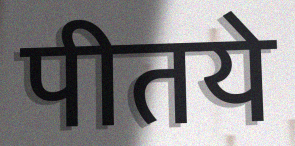
पीतये